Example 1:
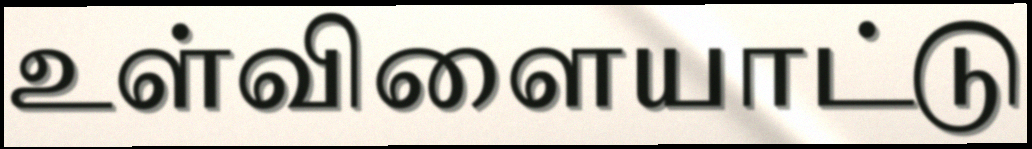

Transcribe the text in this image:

உள்விளையாட்டு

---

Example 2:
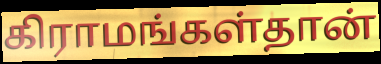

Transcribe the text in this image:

கிராமங்கள்தான்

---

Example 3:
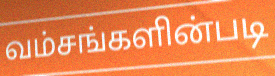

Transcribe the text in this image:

வம்சங்களின்படி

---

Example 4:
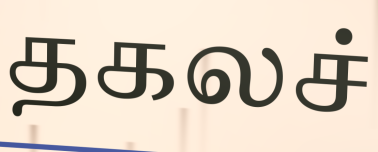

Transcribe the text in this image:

தகலச்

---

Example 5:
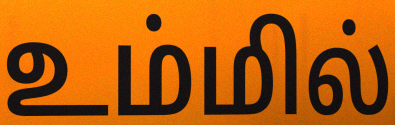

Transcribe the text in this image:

உம்மில்